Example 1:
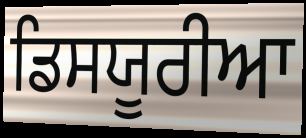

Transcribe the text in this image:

ਡਿਸਯੂਰੀਆ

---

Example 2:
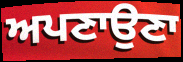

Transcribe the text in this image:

ਅਪਣਾਉਣਾ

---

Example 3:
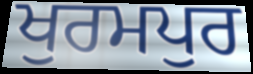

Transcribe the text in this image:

ਖੁਰਮਪੁਰ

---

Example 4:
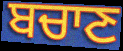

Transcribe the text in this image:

ਬਚਾਣ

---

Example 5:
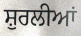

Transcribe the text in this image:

ਸ਼ੁਰਲੀਆਂ